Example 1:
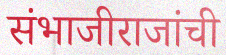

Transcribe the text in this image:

संभाजीराजांची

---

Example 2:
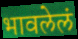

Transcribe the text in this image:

भावलेलं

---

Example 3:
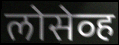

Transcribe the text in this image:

लोसेव्ह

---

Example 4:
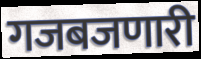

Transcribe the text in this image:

गजबजणारी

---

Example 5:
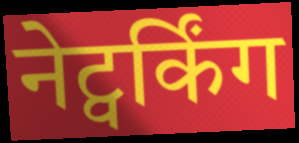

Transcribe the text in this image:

नेट्वर्किंग